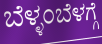
ಬೆಳ್ಳಂಬೆಳಗ್ಗೆ